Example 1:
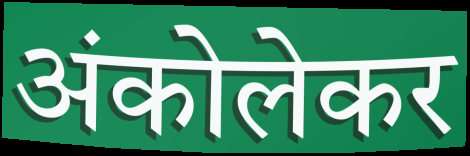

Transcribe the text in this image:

अंकोलेकर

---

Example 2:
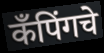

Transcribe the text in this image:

कँपिंगचे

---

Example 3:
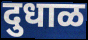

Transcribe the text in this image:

दुधाळ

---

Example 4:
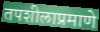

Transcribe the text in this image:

तपशीलाप्रमाणे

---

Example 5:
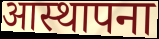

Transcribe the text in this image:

आस्थापना